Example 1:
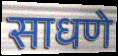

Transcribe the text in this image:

साधणे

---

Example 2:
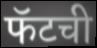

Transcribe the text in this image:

फॅटची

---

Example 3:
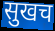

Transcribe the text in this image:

सुखच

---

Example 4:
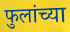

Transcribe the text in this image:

फुलांच्या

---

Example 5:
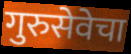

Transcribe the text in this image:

गुरुसेवेचा